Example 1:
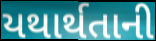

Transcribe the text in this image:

યથાર્થતાની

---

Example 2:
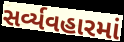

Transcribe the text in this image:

સર્વ્યવહારમાં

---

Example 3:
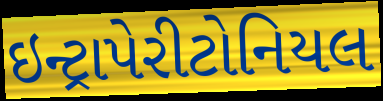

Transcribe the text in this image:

ઇન્ટ્રાપેરીટોનિયલ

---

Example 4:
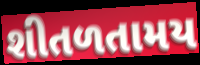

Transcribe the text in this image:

શીતળતામય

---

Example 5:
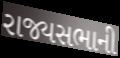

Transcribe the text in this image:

રાજ્યસભાની